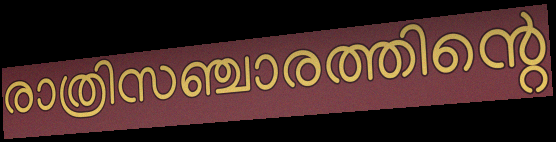
രാത്രിസഞ്ചാരത്തിന്റെ